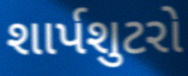
શાર્પશુટરો